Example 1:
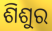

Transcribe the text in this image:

ଶିଶୁର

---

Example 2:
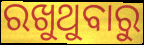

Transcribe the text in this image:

ରଖୁଥୁବାରୁ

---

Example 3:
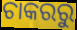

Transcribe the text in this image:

ଚାକରରୁ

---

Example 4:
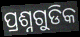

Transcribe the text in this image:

ପ୍ରଶ୍ନଗୁଡିକ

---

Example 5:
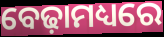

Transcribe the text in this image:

ବେଢ଼ାମଧ୍ୟରେ